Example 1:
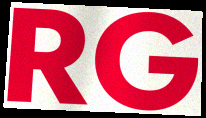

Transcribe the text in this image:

RG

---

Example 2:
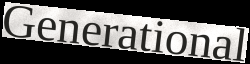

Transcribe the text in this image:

Generational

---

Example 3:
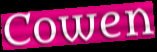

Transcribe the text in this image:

Cowen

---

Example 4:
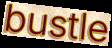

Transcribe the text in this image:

bustle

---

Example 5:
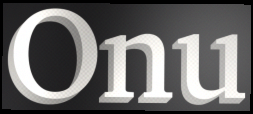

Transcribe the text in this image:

Onu